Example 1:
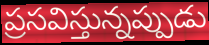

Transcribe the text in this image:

ప్రసవిస్తున్నప్పుడు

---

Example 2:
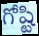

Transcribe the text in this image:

గోష్టి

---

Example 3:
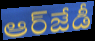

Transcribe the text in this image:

ఆర్‌జేడీ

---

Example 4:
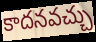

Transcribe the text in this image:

కాదనవచ్చు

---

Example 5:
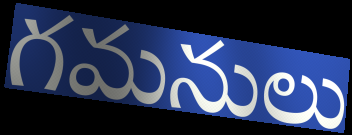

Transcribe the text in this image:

గమనులు